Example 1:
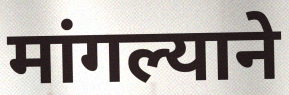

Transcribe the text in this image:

मांगल्याने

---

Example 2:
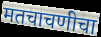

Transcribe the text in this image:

मतचाचणीचा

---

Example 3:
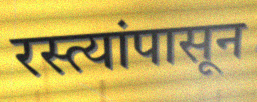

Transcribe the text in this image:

रस्त्यांपासून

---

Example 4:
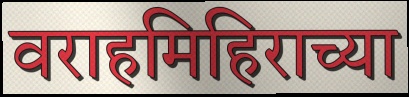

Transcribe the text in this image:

वराहमिहिराच्या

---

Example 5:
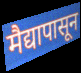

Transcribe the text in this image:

मैद्यापासून